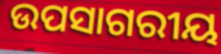
ଉପସାଗରୀୟ